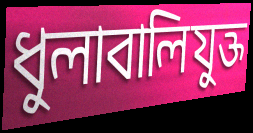
ধুলাবালিযুক্ত